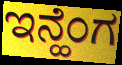
ಇನ್ಹೆಂಗ